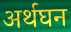
अर्थघन